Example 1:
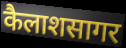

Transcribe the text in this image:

कैलाशसागर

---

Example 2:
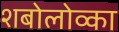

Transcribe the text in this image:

शबोलोव्का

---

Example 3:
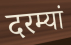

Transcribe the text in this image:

दरम्यां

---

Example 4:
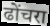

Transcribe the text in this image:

ढोंचरा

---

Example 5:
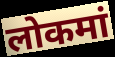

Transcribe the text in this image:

लोकमां